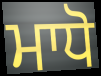
ਮਾਧੋ